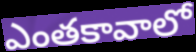
ఎంతకావాలో